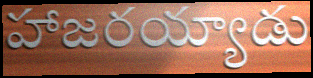
హాజరయ్యాడు